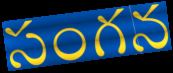
సంగన